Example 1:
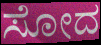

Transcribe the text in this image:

ಸೋದ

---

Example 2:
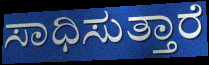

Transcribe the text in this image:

ಸಾಧಿಸುತ್ತಾರೆ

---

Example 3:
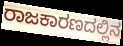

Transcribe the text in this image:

ರಾಜಕಾರಣದಲ್ಲಿನ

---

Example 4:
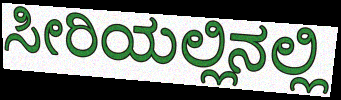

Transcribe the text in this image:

ಸೀರಿಯಲ್ಲಿನಲ್ಲಿ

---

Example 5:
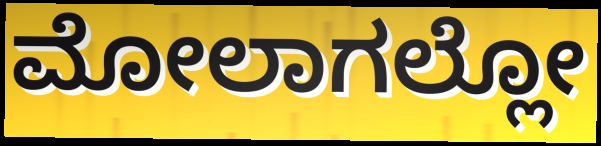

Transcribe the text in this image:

ಮೋಲಾಗಲ್ಲೋ